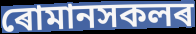
ৰোমানসকলৰ